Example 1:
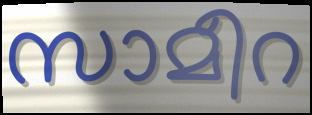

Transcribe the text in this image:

സാമീറ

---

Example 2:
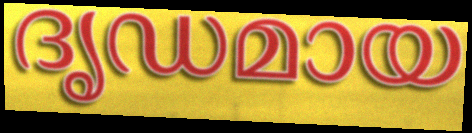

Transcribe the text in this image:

ദൃഡമായ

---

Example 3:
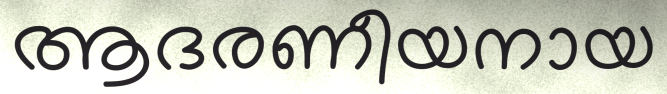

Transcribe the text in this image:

ആദരണീയനായ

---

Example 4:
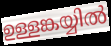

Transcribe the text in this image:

ഉള്ളങ്കയ്യിൽ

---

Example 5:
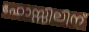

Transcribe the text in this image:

ഫോസ്സിലിന്